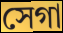
সেগা